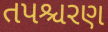
તપશ્ચરણ